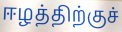
ஈழத்திற்குச்